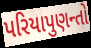
પરિયાપુણન્તો